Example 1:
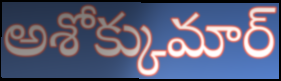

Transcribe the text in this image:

అశోక్కుమార్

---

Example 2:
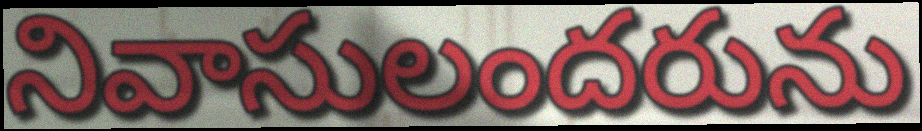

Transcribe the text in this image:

నివాసులందరును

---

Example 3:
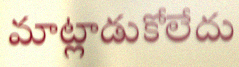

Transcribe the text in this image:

మాట్లాడుకోలేదు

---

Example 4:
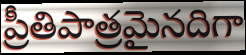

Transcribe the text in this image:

ప్రీతిపాత్రమైనదిగా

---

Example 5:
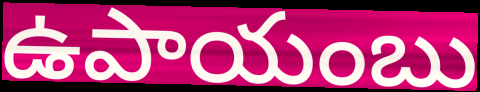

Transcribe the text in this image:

ఉపాయంబు